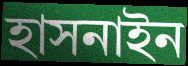
হাসনাইন